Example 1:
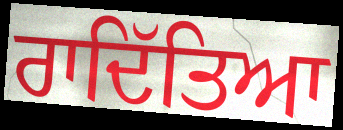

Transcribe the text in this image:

ਰਾਦਿੱਤਿਆ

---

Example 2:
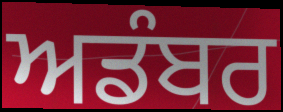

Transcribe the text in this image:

ਅਡੰਬਰ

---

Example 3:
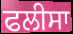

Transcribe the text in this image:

ਫਲੀਸਾ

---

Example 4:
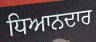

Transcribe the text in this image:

ਧਿਆਨਦਾਰ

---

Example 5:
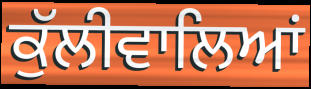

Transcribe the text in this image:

ਕੁੱਲੀਵਾਲਿਆਂ